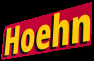
Hoehn